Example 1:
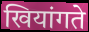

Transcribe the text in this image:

खियांगते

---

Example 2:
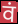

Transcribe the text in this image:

वं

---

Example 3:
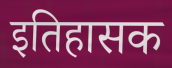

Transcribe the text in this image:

इतिहासक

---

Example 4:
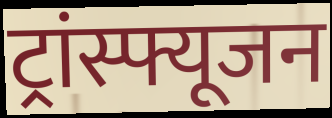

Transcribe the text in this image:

ट्रांस्फ्यूजन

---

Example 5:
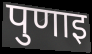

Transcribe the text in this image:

पुणाइ